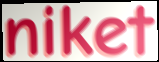
niket